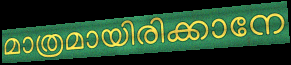
മാത്രമായിരിക്കാനേ